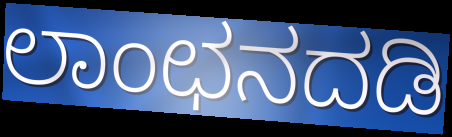
ಲಾಂಛನದಡಿ